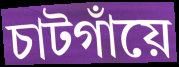
চাটগাঁয়ে